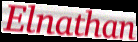
Elnathan